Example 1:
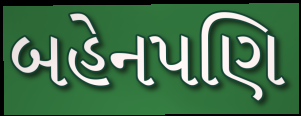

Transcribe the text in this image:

બહેનપણિ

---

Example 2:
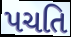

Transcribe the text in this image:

પચતિ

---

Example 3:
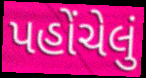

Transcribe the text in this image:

પહોંચેલું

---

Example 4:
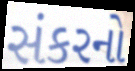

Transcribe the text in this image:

સંકરનો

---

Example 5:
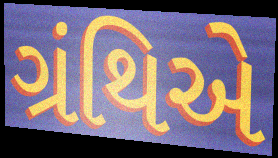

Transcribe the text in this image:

ગ્રંથિએ